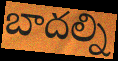
బాదల్ని